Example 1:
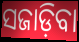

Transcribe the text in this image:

ସଜାଡ଼ିବା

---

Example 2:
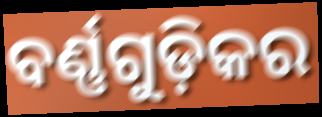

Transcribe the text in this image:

ବର୍ଣ୍ଣଗୁଡ଼ିକର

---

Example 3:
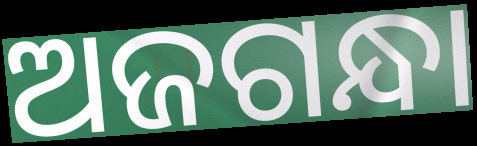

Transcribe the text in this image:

ଅଜଗନ୍ଧା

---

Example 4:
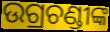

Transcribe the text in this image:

ଉଗ୍ରଚଣ୍ଡୀଙ୍କ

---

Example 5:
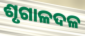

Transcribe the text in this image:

ଶୃଗାଳଦଳ